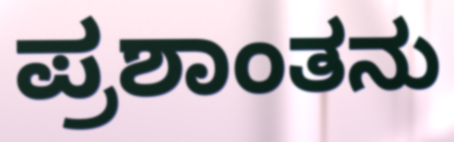
ಪ್ರಶಾಂತನು